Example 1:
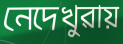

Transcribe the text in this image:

নেদেখুৱায়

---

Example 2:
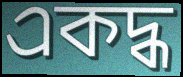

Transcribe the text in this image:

একদ্ধ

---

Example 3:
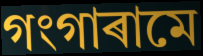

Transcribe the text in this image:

গংগাৰামে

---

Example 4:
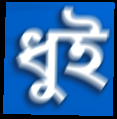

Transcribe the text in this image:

ধুই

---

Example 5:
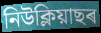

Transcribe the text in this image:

নিউক্লিয়াছৰ